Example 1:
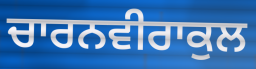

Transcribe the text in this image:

ਚਾਰਨਵੀਰਾਕੁਲ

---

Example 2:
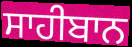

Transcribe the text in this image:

ਸਾਹੀਬਾਨ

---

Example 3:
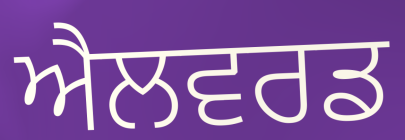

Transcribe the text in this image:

ਐਲਵਰਡ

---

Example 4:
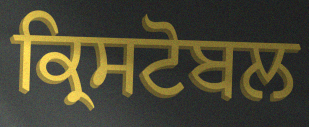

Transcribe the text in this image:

ਕ੍ਰਿਸਟੋਬਲ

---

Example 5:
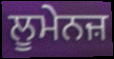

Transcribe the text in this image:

ਲੂਮੇਨਜ਼